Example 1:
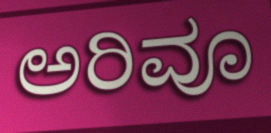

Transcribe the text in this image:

ಅರಿವೂ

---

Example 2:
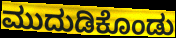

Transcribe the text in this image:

ಮುದುಡಿಕೊಂಡು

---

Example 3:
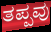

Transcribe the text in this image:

ತಪ್ಪವು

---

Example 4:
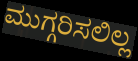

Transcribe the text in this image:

ಮುಗ್ಗರಿಸಲಿಲ್ಲ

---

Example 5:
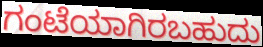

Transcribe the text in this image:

ಗಂಟೆಯಾಗಿರಬಹುದು